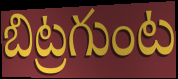
బిట్రగుంట